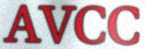
AVCC